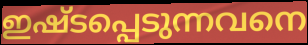
ഇഷ്ടപ്പെടുന്നവനെ